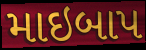
માઇબાપ